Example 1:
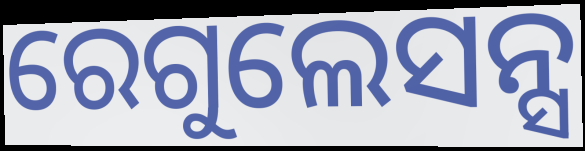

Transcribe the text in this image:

ରେଗୁଲେସନ୍ସ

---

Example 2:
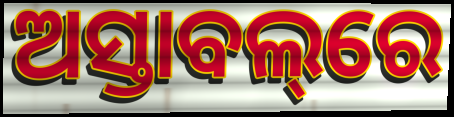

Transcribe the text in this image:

ଅସ୍ତାବଲ୍‌ରେ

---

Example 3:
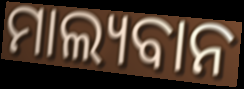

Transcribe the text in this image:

ମାଲ୍ୟବାନ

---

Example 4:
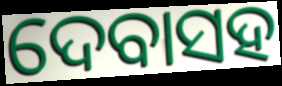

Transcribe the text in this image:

ଦେବାସହ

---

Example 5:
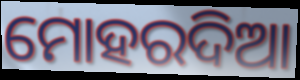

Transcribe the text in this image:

ମୋହରଦିଆ